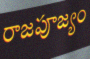
రాజపూజ్యం